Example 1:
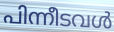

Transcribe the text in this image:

പിന്നീടവൾ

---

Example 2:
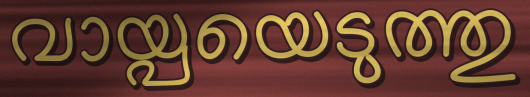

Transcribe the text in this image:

വായ്പയെടുത്തു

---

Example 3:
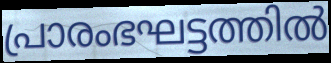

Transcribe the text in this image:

പ്രാരംഭഘട്ടത്തിൽ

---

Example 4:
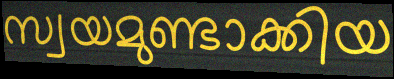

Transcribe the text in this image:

സ്വയമുണ്ടാക്കിയ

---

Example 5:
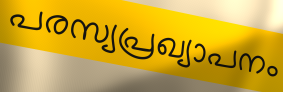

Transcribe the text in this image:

പരസ്യപ്രഖ്യാപനം